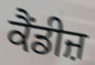
ਕੈਂਡੀਜ਼